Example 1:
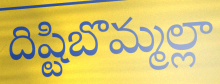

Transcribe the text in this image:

దిష్టిబొమ్మల్లా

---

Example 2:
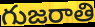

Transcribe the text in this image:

గుజరాతి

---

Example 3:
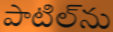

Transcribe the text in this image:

పాటిల్‌ను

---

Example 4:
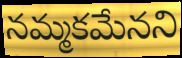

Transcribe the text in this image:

నమ్మకమేనని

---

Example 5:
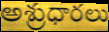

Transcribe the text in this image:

అశ్రుధారలు